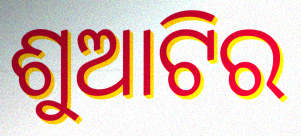
ଶୁଆଟିର